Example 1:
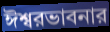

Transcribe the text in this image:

ঈশ্বরভাবনার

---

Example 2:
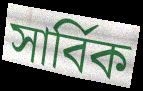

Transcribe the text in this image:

সার্বিক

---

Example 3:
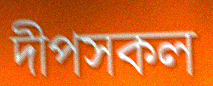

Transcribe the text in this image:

দীপসকল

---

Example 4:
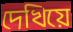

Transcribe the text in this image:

দেখিয়ে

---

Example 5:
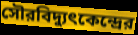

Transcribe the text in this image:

সৌরবিদ্যুৎকেন্দ্রের